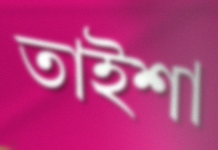
তাইশা